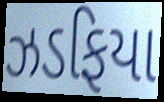
ઝડફિયા